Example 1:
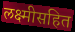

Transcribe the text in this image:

लक्ष्मीसहित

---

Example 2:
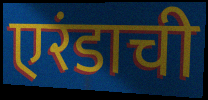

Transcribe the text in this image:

एरंडाची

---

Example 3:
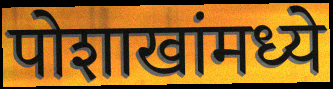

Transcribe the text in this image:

पोशाखांमध्ये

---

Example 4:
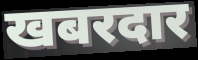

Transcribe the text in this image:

खबरदार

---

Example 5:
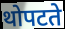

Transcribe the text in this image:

थोपटते